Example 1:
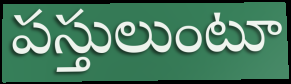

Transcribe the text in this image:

పస్తులుంటూ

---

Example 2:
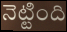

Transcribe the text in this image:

నెట్టింది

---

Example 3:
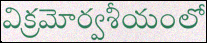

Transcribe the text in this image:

విక్రమోర్వశీయంలో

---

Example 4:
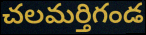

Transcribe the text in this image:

చలమర్తిగండ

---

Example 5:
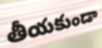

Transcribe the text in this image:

తీయకుండా